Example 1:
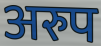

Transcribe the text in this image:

अरुप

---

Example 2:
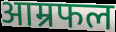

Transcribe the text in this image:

आम्रफल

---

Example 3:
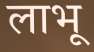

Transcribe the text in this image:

लाभू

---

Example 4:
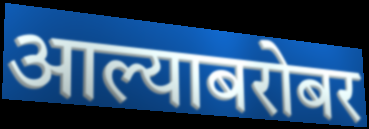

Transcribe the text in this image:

आल्याबरोबर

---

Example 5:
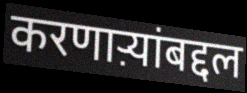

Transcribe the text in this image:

करणाऱ्‍यांबद्दल